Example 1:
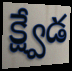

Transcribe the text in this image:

క్ష్వేడ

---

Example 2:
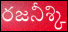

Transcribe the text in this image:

రజనీశ్కి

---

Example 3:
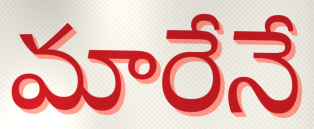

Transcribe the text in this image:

మారేనే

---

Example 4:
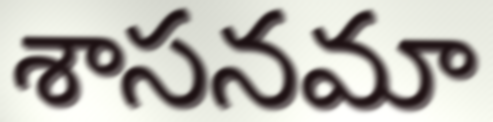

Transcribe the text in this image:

శాసనమా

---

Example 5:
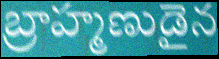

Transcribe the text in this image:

బ్రాహ్మణుడైన